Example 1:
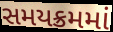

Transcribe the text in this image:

સમયક્રમમાં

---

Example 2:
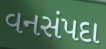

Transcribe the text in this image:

વનસંપદા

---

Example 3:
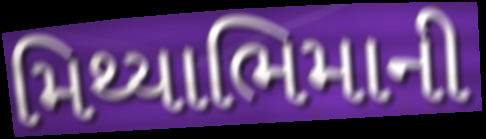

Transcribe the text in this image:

મિથ્યાભિમાની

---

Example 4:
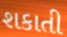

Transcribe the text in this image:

શકાતી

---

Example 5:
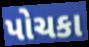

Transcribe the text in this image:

પોચકા